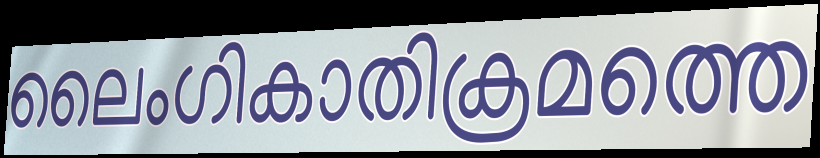
ലൈംഗികാതിക്രമത്തെ